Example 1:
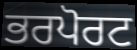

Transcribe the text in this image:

ਭਰਪੋਰਟ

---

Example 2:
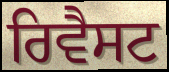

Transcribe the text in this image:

ਰਿਵੈਸਟ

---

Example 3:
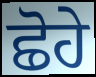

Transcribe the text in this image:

ਛੋਹੇ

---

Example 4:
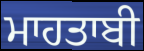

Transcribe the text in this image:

ਮਾਹਤਾਬੀ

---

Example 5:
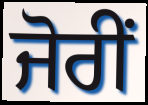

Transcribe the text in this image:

ਜੋਰੀਂ